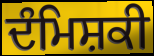
ਦੰਮਿਸ਼ਕੀ